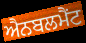
ਐਨਬਲਮੈਂਟ